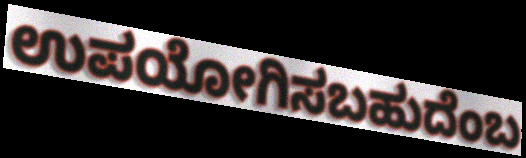
ಉಪಯೋಗಿಸಬಹುದೆಂಬ